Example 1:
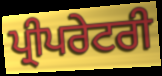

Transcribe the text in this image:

ਪ੍ਰੀਪਰੇਟਰੀ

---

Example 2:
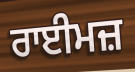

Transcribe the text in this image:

ਰਾਈਮਜ਼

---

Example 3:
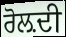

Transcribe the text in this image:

ਰੋਲ਼ਦੀ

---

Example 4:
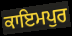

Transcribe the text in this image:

ਕਾਇਮਪੁਰ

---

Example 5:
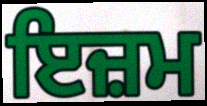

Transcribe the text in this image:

ਇਜ਼ਮ